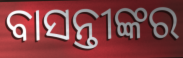
ବାସନ୍ତୀଙ୍କର